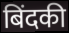
बिंदकी